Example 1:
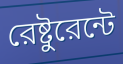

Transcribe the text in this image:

রেষ্টুরেন্টে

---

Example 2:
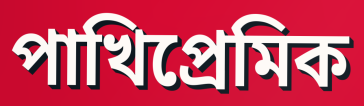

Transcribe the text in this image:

পাখিপ্রেমিক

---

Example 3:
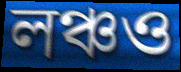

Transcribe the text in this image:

লঞ্চও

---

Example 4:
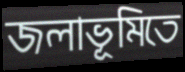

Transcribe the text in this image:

জলাভূমিতে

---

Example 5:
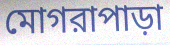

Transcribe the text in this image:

মোগরাপাড়া